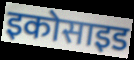
इकोसाइड